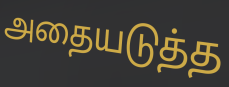
அதையடுத்த